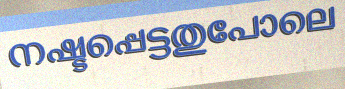
നഷ്ടപ്പെട്ടതുപോലെ